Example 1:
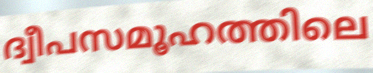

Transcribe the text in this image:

ദ്വീപസമൂഹത്തിലെ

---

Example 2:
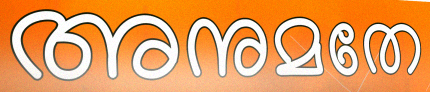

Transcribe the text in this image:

അനുമതേ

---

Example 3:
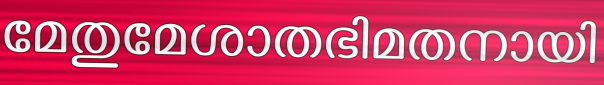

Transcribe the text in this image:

മേതുമേശാതഭിമതനായി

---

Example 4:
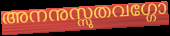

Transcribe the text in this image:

അനനുസ്സുതവഗ്ഗോ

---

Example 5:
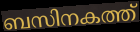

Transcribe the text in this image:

ബസിനകത്ത്